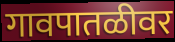
गावपातळीवर